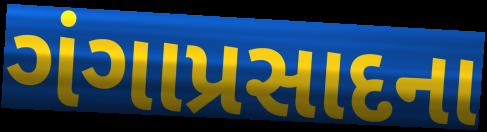
ગંગાપ્રસાદના